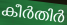
കീർതിർ